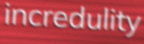
incredulity